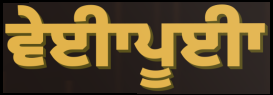
ਵੇਈਾਪੂਈਾ